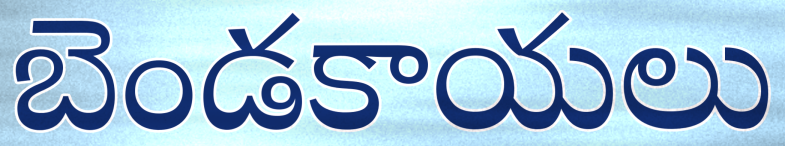
బెండకాయలు